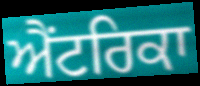
ਐਂਟਰਿਕਾ